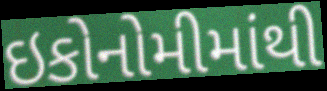
ઇકોનોમીમાંથી